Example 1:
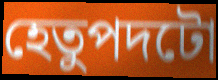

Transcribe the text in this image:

হেতুপদটো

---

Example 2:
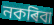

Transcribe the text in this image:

নকৰিবা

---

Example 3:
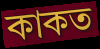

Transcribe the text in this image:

কাকত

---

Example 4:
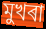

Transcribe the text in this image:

মুখৰা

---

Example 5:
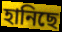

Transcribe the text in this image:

হানিছে